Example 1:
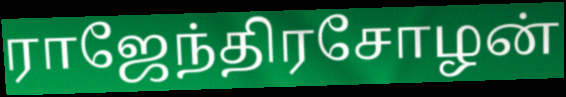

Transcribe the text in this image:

ராஜேந்திரசோழன்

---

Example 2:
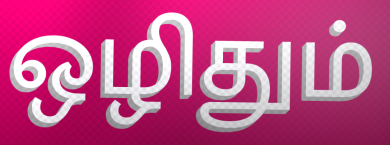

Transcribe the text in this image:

ஒழிதும்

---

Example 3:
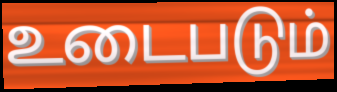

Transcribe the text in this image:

உடைபடும்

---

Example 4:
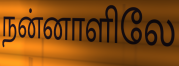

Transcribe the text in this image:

நன்னாளிலே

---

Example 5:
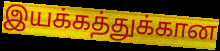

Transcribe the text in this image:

இயக்கத்துக்கான